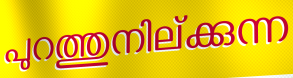
പുറത്തുനില്ക്കുന്ന